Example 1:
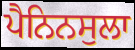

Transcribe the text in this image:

ਪੈਨਿਨਸੁਲਾ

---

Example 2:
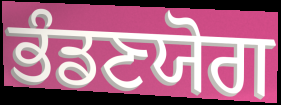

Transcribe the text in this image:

ਭੰਡਣਯੋਗ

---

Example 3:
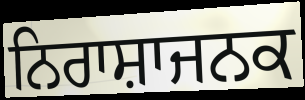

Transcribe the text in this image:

ਨਿਰਾਸ਼ਾਜਨਕ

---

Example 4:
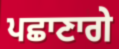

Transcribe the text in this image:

ਪਛਾਣਾਗੇ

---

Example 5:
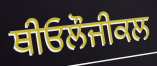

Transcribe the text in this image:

ਥੀਓਲੌਜੀਕਲ